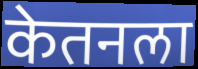
केतनला